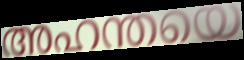
അഹന്തയെ